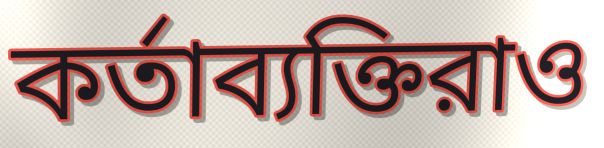
কর্তাব্যক্তিরাও